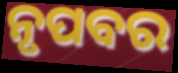
ନୃପବର